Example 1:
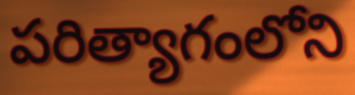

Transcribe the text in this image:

పరిత్యాగంలోని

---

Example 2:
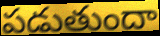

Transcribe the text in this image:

పడుతుందా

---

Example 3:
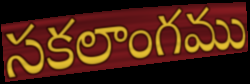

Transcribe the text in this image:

సకలాంగము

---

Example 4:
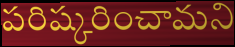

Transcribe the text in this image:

పరిష్కరించామని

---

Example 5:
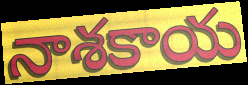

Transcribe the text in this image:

నాశకాయ